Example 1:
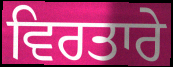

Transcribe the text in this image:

ਵਿਰਤਾਰੇ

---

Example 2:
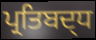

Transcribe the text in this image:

ਪ੍ਰਤਿਬਦ੍ਧ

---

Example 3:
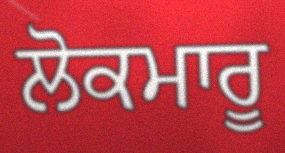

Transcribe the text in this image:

ਲੋਕਮਾਰੂ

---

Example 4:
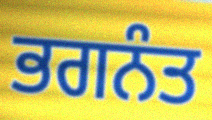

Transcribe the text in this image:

ਭਗਨੰਤ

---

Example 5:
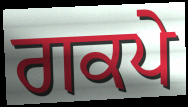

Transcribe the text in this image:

ਗਕਪੇ